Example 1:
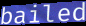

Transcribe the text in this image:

bailed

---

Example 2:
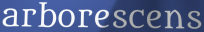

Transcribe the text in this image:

arborescens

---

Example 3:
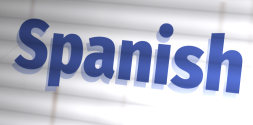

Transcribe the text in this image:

Spanish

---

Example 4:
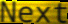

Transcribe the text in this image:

Next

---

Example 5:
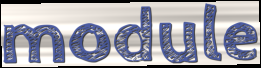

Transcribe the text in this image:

module